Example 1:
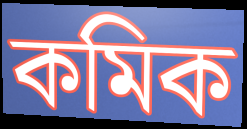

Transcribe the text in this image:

কমিক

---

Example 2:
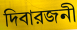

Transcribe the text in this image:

দিবারজনী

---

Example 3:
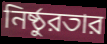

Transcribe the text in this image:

নিষ্ঠুরতার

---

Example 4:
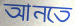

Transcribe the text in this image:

আনতে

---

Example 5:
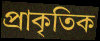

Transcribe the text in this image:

প্রাকৃতিক